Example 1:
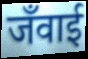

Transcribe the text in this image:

जँवाई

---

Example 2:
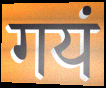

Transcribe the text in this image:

गयं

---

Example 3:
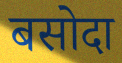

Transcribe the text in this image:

बसोदा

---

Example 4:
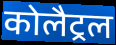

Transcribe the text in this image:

कोलैट्रल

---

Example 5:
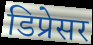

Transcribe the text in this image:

डिप्रेसर